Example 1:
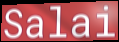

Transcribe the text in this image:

Salai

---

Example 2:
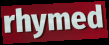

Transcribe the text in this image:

rhymed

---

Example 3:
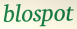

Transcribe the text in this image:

blospot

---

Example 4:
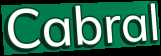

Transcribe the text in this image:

Cabral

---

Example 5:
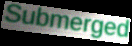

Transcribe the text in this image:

Submerged